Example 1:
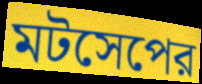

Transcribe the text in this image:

মটসেপের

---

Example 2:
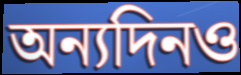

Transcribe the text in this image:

অন্যদিনও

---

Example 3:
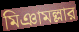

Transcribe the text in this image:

মিঞামল্লার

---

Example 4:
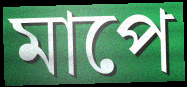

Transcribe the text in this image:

মাপে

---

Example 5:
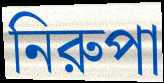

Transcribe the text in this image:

নিরুপা